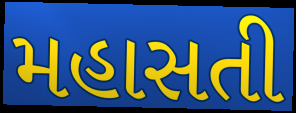
મહાસતી